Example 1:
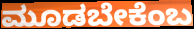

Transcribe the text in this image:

ಮೂಡಬೇಕೆಂಬ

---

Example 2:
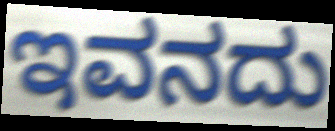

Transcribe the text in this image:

ಇವನದು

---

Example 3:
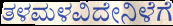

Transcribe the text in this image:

ತಳಮಳವಿದೇನಿಳೆಗೆ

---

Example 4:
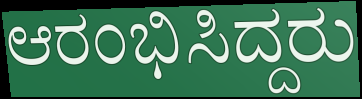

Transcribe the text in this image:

ಆರಂಭಿಸಿದ್ದರು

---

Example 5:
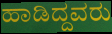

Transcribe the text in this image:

ಹಾಡಿದ್ದವರು